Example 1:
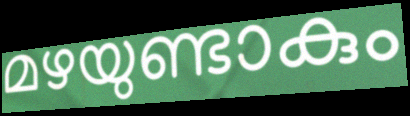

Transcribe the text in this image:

മഴയുണ്ടാകും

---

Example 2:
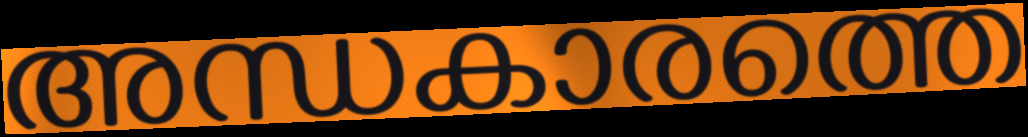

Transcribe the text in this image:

അന്ധകാരത്തെ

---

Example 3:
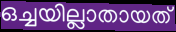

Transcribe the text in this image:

ഒച്ചയില്ലാതായത്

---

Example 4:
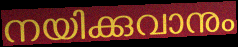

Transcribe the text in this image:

നയിക്കുവാനും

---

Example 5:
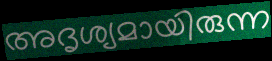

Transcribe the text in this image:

അദൃശ്യമായിരുന്ന